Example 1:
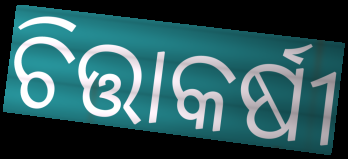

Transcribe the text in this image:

ଚିତ୍ତାକର୍ଷୀ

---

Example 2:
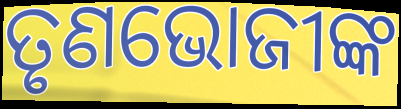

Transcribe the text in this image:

ତୃଣଭୋଜୀଙ୍କ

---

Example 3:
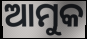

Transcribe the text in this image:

ଆମୁକ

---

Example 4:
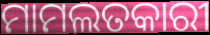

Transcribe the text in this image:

ମାମଲତକାରୀ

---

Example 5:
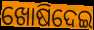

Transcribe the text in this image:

ଖୋଷିଦେଇ